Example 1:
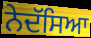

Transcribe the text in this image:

ਨੇਦੱਸਿਆ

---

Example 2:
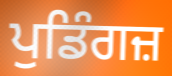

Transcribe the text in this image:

ਪੁਡਿੰਗਜ਼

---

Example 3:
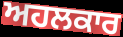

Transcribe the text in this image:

ਅਹਲਕਾਰ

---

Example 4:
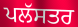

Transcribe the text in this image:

ਪਲੱਸਤਰ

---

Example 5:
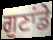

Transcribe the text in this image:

ਗੁਣਾਂਡੇ